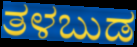
ತಳಬುಡ